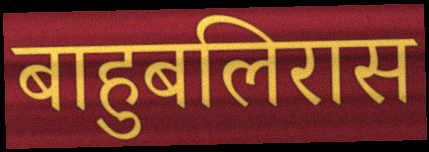
बाहुबलिरास